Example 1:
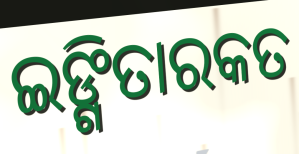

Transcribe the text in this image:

ଇଙ୍ଗିତାରକତ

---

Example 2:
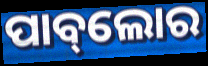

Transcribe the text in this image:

ପାବ୍‌ଲୋର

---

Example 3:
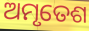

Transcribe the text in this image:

ଅମୃତେଶ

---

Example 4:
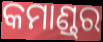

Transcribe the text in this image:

କମାଣ୍ଡ୍‌ର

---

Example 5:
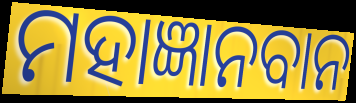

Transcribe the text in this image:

ମହାଜ୍ଞାନବାନ